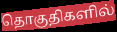
தொகுதிகளில்